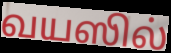
வயஸில்